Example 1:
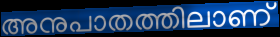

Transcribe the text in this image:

അനുപാതത്തിലാണ്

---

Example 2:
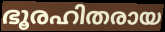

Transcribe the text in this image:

ഭൂരഹിതരായ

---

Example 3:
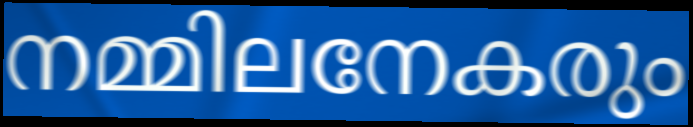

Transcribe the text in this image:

നമ്മിലനേകരും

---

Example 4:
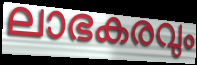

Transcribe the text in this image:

ലാഭകരവും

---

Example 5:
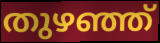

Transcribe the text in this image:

തുഴഞ്ഞ്